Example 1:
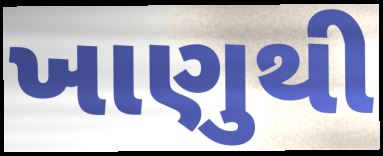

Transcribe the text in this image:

ખાણુથી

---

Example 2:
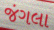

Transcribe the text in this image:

જંગલા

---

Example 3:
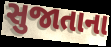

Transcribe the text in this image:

સુજાતાના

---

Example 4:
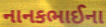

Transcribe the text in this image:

નાનકભાઈના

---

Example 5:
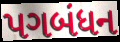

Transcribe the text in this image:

પગબંધન